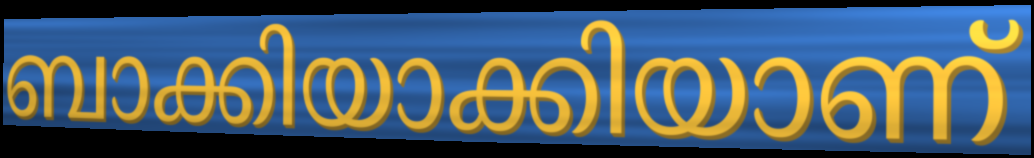
ബാക്കിയാക്കിയാണ്